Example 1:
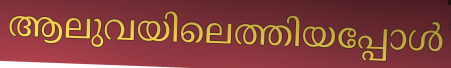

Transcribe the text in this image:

ആലുവയിലെത്തിയപ്പോൾ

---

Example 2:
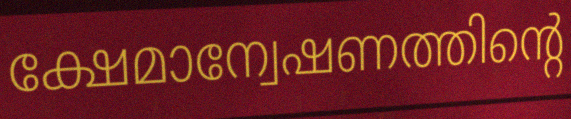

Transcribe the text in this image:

ക്ഷേമാന്വേഷണത്തിന്റെ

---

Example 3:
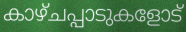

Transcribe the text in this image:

കാഴ്ചപ്പാടുകളോട്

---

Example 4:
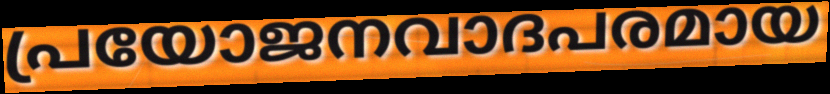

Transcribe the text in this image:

പ്രയോജനവാദപരമായ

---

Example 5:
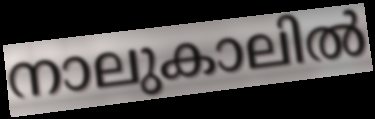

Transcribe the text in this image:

നാലുകാലിൽ